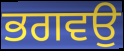
ਭਗਵਉ